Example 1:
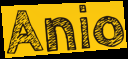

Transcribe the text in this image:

Anio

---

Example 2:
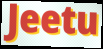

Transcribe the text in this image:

Jeetu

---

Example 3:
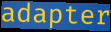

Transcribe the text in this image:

adapter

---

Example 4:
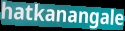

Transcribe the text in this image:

hatkanangale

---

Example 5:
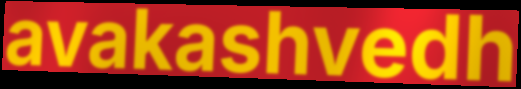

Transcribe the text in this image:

avakashvedh